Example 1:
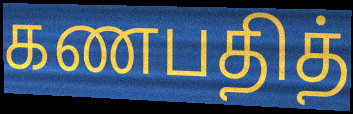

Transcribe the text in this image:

கணபதித்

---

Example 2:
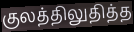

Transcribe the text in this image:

குலத்திலுதித்த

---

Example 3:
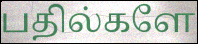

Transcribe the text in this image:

பதில்களே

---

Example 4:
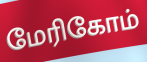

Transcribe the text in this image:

மேரிகோம்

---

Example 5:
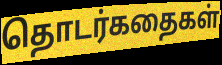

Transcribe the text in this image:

தொடர்கதைகள்